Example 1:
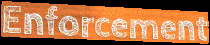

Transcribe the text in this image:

Enforcement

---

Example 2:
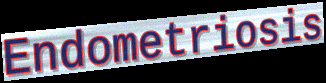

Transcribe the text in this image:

Endometriosis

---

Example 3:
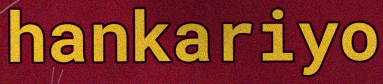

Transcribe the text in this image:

hankariyo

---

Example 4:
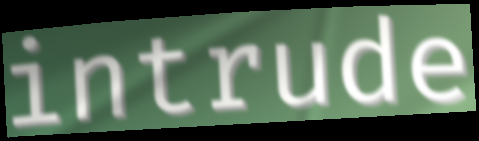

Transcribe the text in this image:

intrude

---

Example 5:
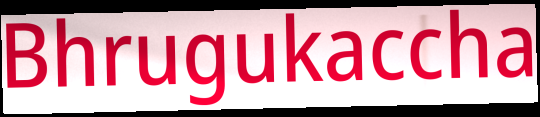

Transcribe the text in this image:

Bhrugukaccha